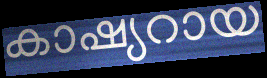
കാഷ്യറായ